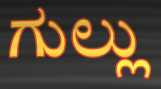
ಗುಲ್ಲು